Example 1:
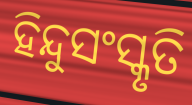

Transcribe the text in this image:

ହିନ୍ଦୁସଂସ୍କୃତି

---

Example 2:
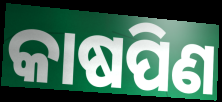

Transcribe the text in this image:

କାଷପିଣ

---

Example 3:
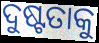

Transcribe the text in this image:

ଦୁଷ୍ଟତାକୁ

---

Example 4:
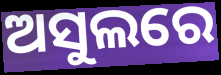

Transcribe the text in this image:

ଅସୁଲରେ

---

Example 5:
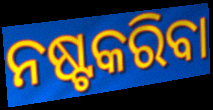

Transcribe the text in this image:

ନଷ୍ଟକରିବା